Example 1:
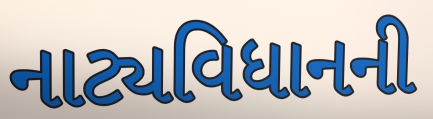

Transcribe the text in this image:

નાટ્યવિધાનની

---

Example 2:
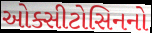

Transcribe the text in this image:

ઓક્સીટોસિનનો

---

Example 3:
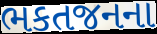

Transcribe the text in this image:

ભકતજનના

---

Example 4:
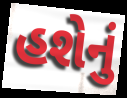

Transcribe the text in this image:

હશેનું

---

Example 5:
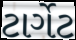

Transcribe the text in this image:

ટાર્ગેટ